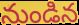
నుండిన